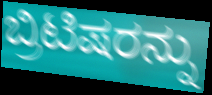
ಬ್ರಿಟಿಷರನ್ನು